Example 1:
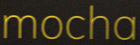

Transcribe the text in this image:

mocha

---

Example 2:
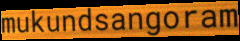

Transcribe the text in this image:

mukundsangoram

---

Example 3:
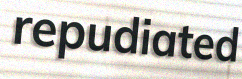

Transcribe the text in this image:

repudiated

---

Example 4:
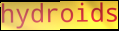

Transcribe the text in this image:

hydroids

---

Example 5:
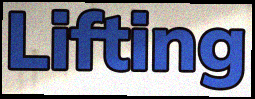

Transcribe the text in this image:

Lifting